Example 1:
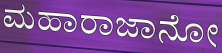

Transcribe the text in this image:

ಮಹಾರಾಜಾನೋ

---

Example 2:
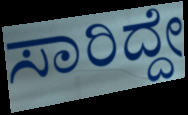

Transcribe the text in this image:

ಸಾರಿದ್ದೇ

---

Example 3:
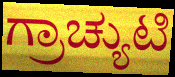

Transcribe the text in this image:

ಗ್ರಾಚ್ಯುಟಿ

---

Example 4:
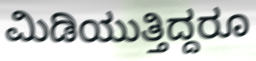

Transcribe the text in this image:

ಮಿಡಿಯುತ್ತಿದ್ದರೂ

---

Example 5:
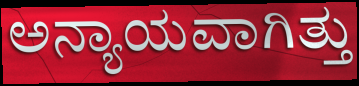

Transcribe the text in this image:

ಅನ್ಯಾಯವಾಗಿತ್ತು